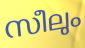
സീലും